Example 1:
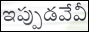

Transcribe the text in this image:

ఇప్పుడవేవీ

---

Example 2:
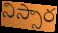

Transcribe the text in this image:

నిస్సార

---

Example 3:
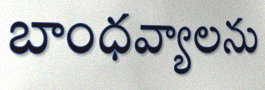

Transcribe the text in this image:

బాంధవ్యాలను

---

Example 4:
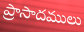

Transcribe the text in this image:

ప్రాసాదములు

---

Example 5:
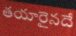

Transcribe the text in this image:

తయారైనదే